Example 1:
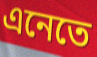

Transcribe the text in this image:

এনেতে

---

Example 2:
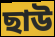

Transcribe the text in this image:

ছাউ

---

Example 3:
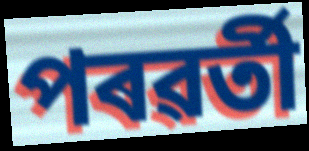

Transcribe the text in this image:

পৰৱৰ্তী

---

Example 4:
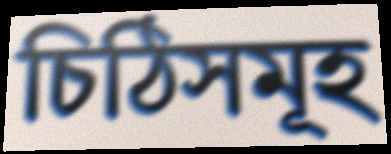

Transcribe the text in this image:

চিঠিসমূহ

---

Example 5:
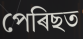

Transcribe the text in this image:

পেৰিছত